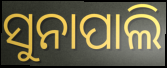
ସୁନାପାଲି